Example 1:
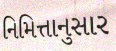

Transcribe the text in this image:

નિમિત્તાનુસાર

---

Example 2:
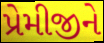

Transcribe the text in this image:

પ્રેમીજીને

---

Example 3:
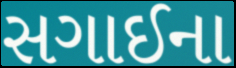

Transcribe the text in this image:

સગાઈના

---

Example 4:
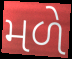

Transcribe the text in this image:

મળે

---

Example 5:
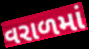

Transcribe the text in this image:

વરાળમાં